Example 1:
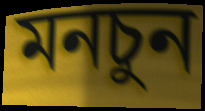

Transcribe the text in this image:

মনচুন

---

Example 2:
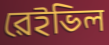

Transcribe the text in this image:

ৱেইভিল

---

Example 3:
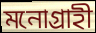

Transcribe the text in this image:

মনোগ্ৰাহী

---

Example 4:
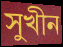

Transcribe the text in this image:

সুখীন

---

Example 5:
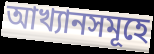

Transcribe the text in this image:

আখ্যানসমূহে